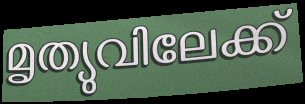
മൃത്യുവിലേക്ക്